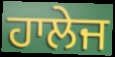
ਹਾਲੇਜ